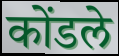
कोंडले